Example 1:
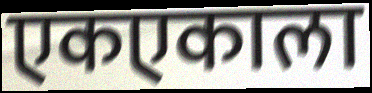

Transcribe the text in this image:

एकएकाला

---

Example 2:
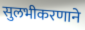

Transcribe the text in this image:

सुलभीकरणाने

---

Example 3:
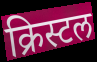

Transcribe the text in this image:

क्रिस्टल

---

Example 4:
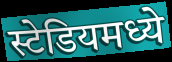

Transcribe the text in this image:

स्टेडियमध्ये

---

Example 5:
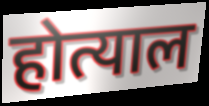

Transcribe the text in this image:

होत्याल